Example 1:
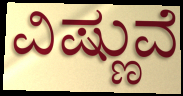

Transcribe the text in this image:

ವಿಷ್ಣುವೆ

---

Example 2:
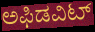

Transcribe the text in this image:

ಅಫಿಡವಿಟ್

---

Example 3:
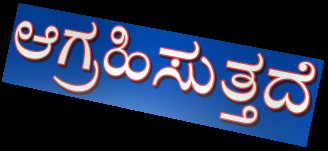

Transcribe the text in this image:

ಆಗ್ರಹಿಸುತ್ತದೆ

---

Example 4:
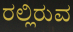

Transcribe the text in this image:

ರಲ್ಲಿರುವ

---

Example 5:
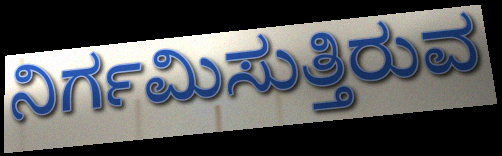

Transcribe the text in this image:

ನಿರ್ಗಮಿಸುತ್ತಿರುವ